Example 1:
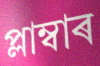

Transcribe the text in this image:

প্লাম্বাৰ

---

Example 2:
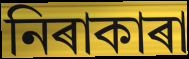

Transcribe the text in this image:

নিৰাকাৰা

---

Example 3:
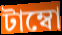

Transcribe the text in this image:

টাম্বো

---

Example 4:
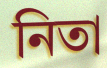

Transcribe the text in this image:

নিতা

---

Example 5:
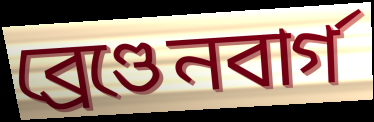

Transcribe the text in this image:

ব্ৰেণ্ডেনবাৰ্গ